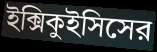
ইক্সিকুইসিসের